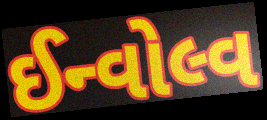
ઈન્વોલ્વ